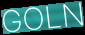
GOLN